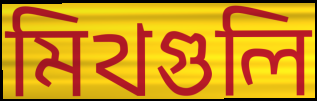
মিথগুলি